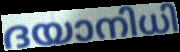
ദയാനിധി